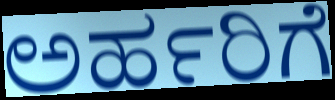
ಅರ್ಹರಿಗೆ